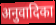
अनुवादिका